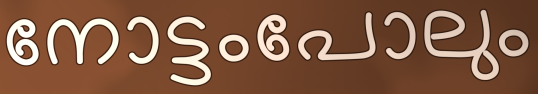
നോട്ടംപോലും